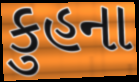
કુહના